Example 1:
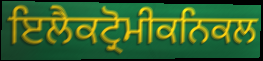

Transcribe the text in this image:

ਇਲੈਕਟ੍ਰੋਮੀਕਨਿਕਲ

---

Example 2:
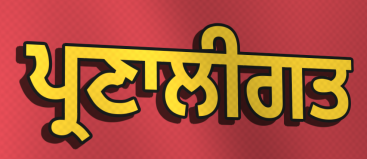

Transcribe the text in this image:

ਪ੍ਰਣਾਲੀਗਤ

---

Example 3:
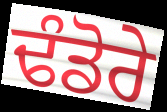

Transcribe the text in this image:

ਢੰਡੋਰੇ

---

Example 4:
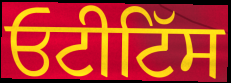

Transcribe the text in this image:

ਓਟੀਟਿੱਸ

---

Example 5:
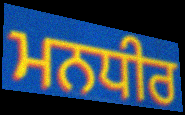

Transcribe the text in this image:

ਮਨਧੀਰ